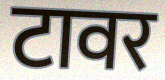
टावर